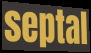
septal